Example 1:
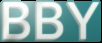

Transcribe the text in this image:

BBY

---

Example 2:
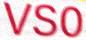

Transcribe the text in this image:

VSO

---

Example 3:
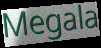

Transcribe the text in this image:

Megala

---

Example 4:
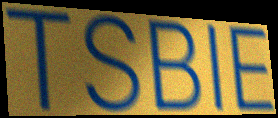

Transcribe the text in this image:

TSBIE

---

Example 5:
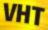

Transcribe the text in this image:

VHT